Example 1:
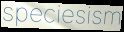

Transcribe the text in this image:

speciesism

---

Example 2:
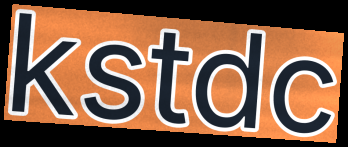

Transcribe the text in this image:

kstdc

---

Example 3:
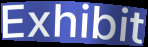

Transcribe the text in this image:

Exhibit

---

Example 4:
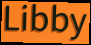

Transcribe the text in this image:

Libby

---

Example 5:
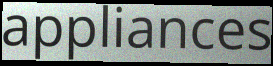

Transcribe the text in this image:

appliances